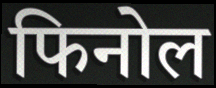
फिनोल